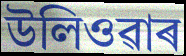
উলিওৱাৰ